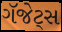
ગૅજેટ્સ